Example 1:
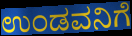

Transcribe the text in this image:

ಉಂಡವನಿಗೆ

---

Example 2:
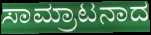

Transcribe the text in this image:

ಸಾಮ್ರಾಟನಾದ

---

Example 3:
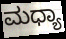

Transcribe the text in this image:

ಮಧ್ಯಾ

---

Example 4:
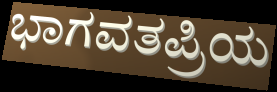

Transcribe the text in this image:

ಭಾಗವತಪ್ರಿಯ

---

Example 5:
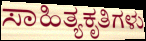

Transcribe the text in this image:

ಸಾಹಿತ್ಯಕೃತಿಗಳು